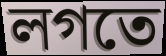
লগতে